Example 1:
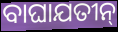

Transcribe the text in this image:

ବାଘାଯତୀନ୍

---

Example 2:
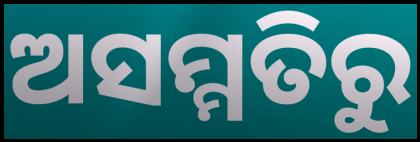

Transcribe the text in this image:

ଅସମ୍ମତିରୁ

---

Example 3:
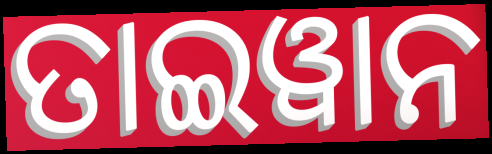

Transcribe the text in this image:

ତାଇୱାନ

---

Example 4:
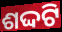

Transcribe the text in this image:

ଶଦ୍ଦଟି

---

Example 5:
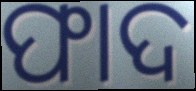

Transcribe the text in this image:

ଫାଦ